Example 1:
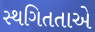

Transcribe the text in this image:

સ્થગિતતાએ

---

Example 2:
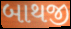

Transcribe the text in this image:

બાથજી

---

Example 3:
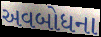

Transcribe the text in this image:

અવબોધના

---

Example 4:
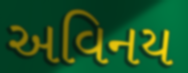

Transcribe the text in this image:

અવિનય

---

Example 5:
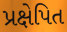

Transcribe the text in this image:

પ્રક્ષેપિત